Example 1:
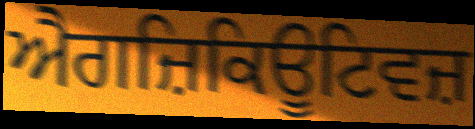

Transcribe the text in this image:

ਐਗਜ਼ਿਕਿਊਟਿਵਜ਼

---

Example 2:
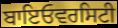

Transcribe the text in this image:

ਬਾਇਓਵਰਸਿਟੀ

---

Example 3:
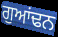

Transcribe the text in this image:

ਗੁਆਂਢਨ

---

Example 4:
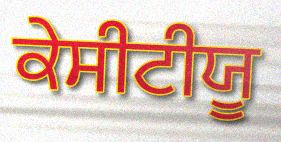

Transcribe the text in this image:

ਕੇਸੀਟੀਯੂ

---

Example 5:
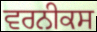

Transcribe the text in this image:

ਵਰਨੀਕਸ